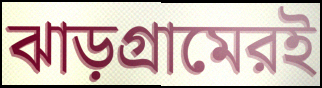
ঝাড়গ্রামেরই